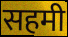
सहमी